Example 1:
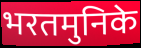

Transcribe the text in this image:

भरतमुनिके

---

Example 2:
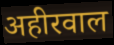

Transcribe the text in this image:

अहीरवाल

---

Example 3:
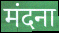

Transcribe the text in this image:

मंदना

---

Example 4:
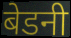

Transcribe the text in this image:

बेडनी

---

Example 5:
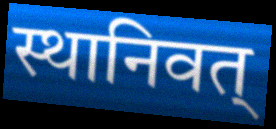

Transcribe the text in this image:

स्थानिवत्